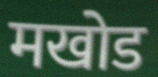
मखोड